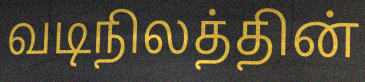
வடிநிலத்தின்